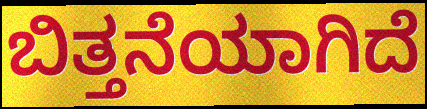
ಬಿತ್ತನೆಯಾಗಿದೆ